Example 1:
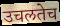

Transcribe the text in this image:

उचलतेच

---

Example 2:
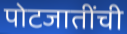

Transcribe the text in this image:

पोटजातींची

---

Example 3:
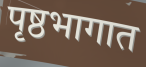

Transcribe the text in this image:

पृष्ठभागात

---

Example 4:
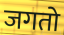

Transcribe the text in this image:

जगतो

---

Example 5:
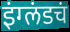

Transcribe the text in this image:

इंग्लंडचं